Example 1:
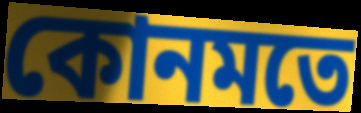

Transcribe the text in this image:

কোনমতে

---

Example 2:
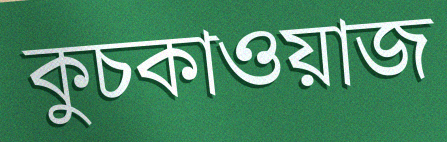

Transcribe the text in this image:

কুচকাওয়াজ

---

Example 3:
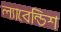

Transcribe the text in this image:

ল্যাবেন্ডিশ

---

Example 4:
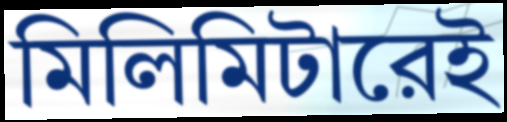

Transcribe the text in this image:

মিলিমিটারেই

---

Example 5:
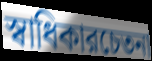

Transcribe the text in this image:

স্বাধিকারচেতনা